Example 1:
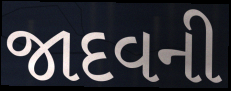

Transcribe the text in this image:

જાદવની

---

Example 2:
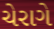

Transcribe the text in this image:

ચેરાગે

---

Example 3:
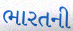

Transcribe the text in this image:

ભારતની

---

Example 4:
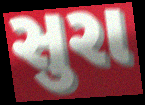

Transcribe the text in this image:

સુરા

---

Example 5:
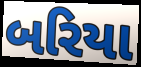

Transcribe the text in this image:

બરિયા